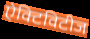
ऐक्टिविटीज